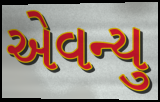
એવન્યુ